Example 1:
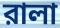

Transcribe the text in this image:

রালা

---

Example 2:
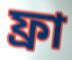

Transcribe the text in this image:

ফ্রা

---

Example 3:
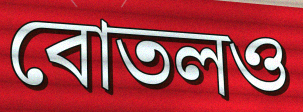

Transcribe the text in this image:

বোতলও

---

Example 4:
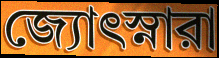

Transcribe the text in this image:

জ্যোৎস্নারা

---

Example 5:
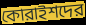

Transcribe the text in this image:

কোরাইশদের